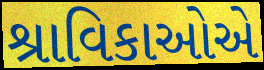
શ્રાવિકાઓએ